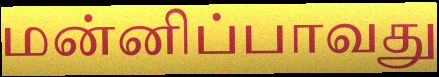
மன்னிப்பாவது